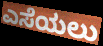
ಎಸೆಯಲು